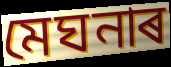
মেঘনাৰ